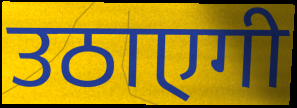
उठाएगी